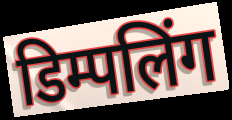
डिम्पलिंग